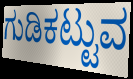
ಗುಡಿಕಟ್ಟುವ